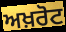
ਅਖ਼ਰੋਟ